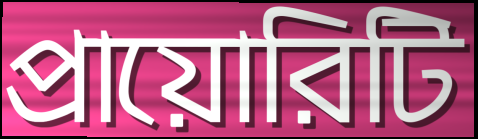
প্রায়োরিটি